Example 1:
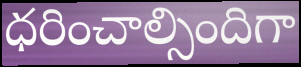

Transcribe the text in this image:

ధరించాల్సిందిగా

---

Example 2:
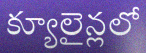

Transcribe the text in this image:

క్యూలైన్లలో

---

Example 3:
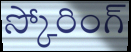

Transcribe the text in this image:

స్కోరింగ్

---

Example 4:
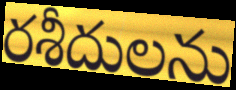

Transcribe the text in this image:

రశీదులను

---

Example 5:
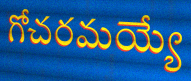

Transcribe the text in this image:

గోచరమయ్యే